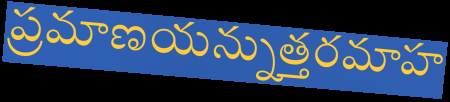
ప్రమాణయన్నుత్తరమాహ